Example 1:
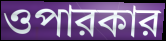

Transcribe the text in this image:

ওপারকার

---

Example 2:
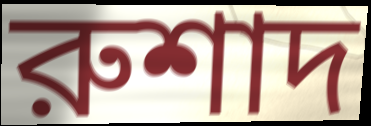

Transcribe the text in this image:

রুশাদ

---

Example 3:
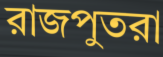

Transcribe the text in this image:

রাজপুতরা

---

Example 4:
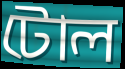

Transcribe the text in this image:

টোল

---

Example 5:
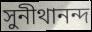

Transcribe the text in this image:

সুনীথানন্দ